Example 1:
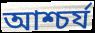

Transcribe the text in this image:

আশ্চর্য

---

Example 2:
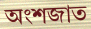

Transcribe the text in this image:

অংশজাত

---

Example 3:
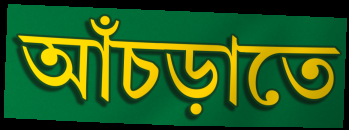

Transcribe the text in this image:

আঁচড়াতে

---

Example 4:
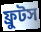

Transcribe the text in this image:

ফ্রুটস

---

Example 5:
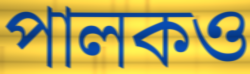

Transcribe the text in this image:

পালকও